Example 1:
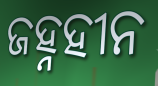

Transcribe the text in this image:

ଜହ୍ନହୀନ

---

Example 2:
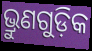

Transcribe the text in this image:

ଭ୍ରୁଣଗୁଡ଼ିକ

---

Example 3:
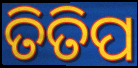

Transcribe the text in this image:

ତିତିପ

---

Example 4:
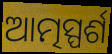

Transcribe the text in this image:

ଆତ୍ମସ୍ପର୍ଶ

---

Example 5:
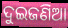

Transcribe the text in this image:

ଦୁଇଜଣିଆ